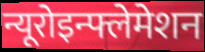
न्यूरोइन्फ्लेमेशन